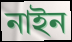
নাইন